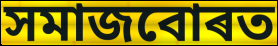
সমাজবোৰত